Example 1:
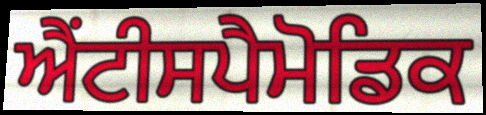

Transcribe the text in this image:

ਐਂਟੀਸਪੈਮੋਡਿਕ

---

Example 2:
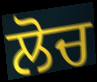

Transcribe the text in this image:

ਲੋਚ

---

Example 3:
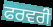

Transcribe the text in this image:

ਫਰਵਰੀ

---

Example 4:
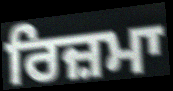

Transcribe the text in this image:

ਰਿਜ਼ਮਾ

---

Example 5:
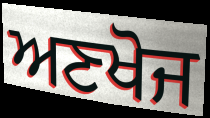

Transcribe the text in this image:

ਅਣਖੋਜ